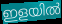
ഇളയിൽ